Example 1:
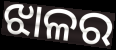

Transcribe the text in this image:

ଝାଳର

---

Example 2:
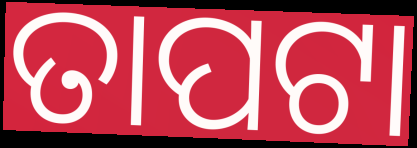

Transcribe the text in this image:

ତାପଟା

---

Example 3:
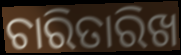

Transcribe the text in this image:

ଚାରିତାରିଖ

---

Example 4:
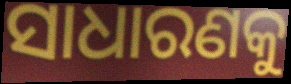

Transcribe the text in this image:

ସାଧାରଣକୁ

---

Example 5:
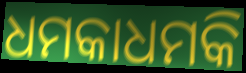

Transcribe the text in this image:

ଧମକାଧମକି